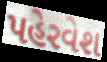
પહેરવેશ